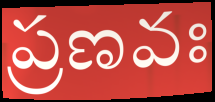
ప్రణవః